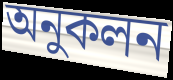
অনুকলন